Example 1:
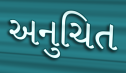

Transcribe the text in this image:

અનુચિત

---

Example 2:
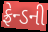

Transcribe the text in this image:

ફ્રેન્ડની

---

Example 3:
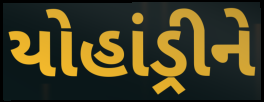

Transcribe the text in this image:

યોહાંડ્રીને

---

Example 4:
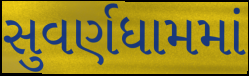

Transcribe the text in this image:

સુવર્ણધામમાં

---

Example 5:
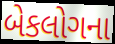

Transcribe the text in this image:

બેકલોગના